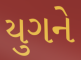
યુગને